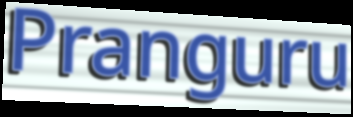
Pranguru